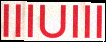
IIIUIII